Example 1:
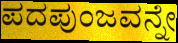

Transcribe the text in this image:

ಪದಪುಂಜವನ್ನೇ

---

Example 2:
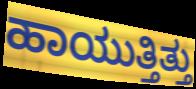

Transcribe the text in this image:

ಹಾಯುತ್ತಿತ್ತು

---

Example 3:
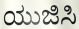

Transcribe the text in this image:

ಯುಜಿಸಿ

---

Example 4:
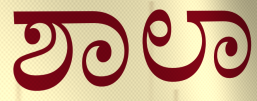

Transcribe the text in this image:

ಶಾಲಾ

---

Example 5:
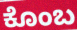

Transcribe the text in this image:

ಕೊಂಬ